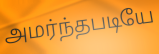
அமர்ந்தபடியே